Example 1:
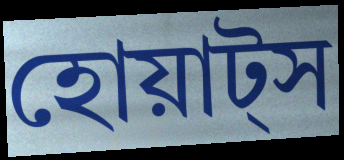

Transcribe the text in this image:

হোয়াট্স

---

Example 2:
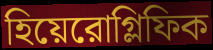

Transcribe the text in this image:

হিয়েরোগ্লিফিক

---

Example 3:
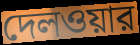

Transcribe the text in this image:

দেলওয়ার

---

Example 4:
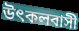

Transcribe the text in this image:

উৎকলবাসী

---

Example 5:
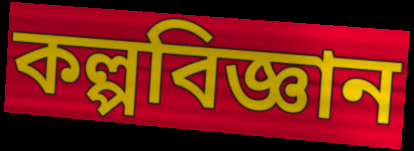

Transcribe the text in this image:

কল্পবিজ্ঞান